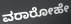
ವರಾರೋಹೇ